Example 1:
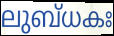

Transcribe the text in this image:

ലുബ്ധകഃ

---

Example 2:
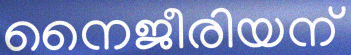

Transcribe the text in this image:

നൈജീരിയന്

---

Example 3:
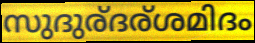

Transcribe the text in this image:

സുദുര്ദര്ശമിദം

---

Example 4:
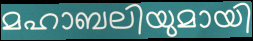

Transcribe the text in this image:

മഹാബലിയുമായി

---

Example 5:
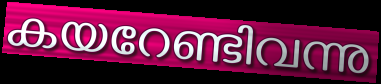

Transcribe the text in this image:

കയറേണ്ടിവന്നു